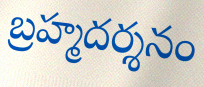
బ్రహ్మదర్శనం